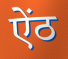
ऐंठ